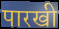
पारखी